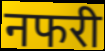
नफरी